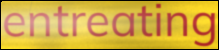
entreating